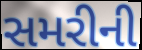
સમરીની